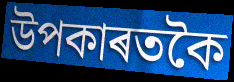
উপকাৰতকৈ